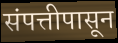
संपत्तीपासून